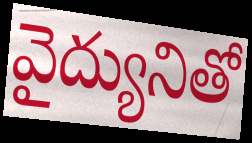
వైద్యునితో